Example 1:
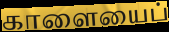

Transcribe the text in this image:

காளையைப்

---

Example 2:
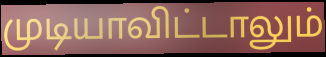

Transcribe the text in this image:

முடியாவிட்டாலும்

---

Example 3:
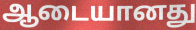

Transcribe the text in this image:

ஆடையானது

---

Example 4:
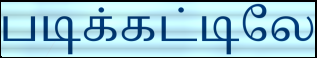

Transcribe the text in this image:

படிக்கட்டிலே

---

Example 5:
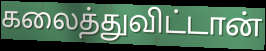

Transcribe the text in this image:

கலைத்துவிட்டான்